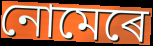
নোমেৰে